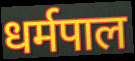
धर्मपाल